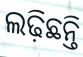
ଲଢ଼ିଛନ୍ତି